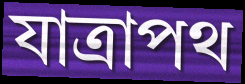
যাত্রাপথ